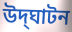
উদ্‌ঘাটন